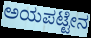
ಅಯಪಟ್ಟೇನ